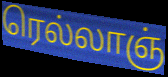
ரெல்லாஞ்